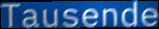
Tausende